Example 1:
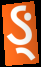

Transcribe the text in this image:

ઙ્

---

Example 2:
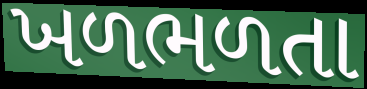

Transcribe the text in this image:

ખળભળતા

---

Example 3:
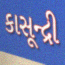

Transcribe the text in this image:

કાસૂન્દ્રી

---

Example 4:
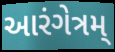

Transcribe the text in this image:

આરંગેત્રમ્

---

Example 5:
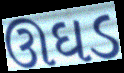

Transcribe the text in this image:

ઊઘડ